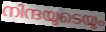
നിന്ദയുടെയും